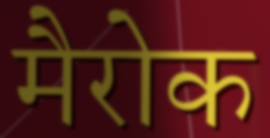
मैरोक